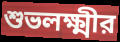
শুভলক্ষ্মীর